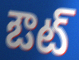
ఔట్